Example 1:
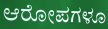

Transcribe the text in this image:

ಆರೋಪಗಳೂ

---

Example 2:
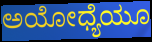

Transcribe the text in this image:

ಅಯೋಧ್ಯೆಯೂ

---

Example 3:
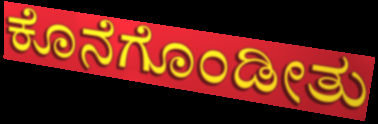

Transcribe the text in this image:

ಕೊನೆಗೊಂಡೀತು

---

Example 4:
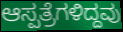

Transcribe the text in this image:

ಆಸ್ಪತ್ರೆಗಳಿದ್ದವು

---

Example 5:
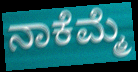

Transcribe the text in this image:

ನಾಕೆಮ್ಮೆ